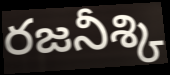
రజనీశ్కి